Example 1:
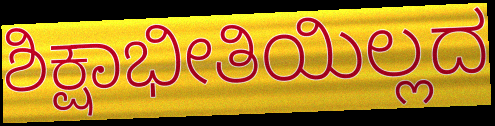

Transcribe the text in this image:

ಶಿಕ್ಷಾಭೀತಿಯಿಲ್ಲದ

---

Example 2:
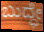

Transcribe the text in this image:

ಬುದ್ಧೇ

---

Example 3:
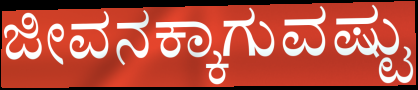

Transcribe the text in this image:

ಜೀವನಕ್ಕಾಗುವಷ್ಟು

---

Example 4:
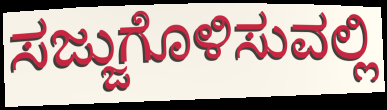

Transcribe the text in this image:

ಸಜ್ಜುಗೊಳಿಸುವಲ್ಲಿ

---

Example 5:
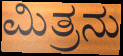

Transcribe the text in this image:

ಮಿತ್ರನು